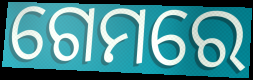
ଗେମରେ